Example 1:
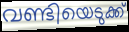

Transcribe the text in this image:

വണ്ടിയെടുക്ക്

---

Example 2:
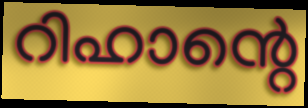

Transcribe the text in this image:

റിഹാന്റെ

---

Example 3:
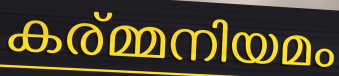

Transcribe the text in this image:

കര്മ്മനിയമം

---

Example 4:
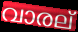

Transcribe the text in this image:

വാരല്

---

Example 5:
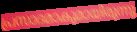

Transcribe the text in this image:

പ്രസാദമാകുമായിരുന്നു